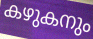
കഴുകനും